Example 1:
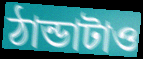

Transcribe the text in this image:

ঠান্ডাটাও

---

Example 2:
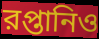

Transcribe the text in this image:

রপ্তানিও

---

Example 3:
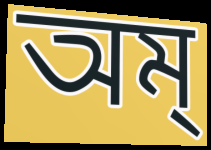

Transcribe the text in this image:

অম্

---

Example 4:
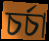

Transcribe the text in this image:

চর্চা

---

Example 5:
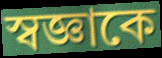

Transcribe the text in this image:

স্বজ্ঞাকে